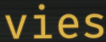
vies